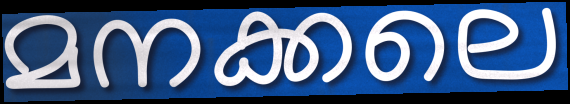
മനക്കലെ